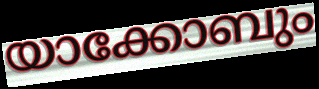
യാക്കോബും